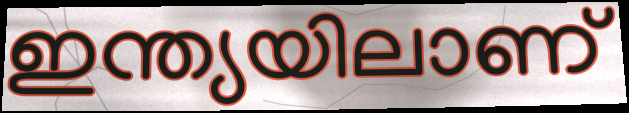
ഇന്ത്യയിലാണ്